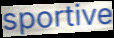
sportive